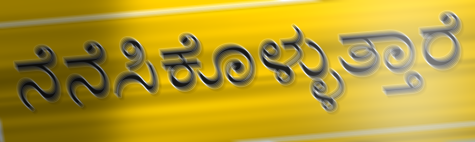
ನೆನೆಸಿಕೊಳ್ಳುತ್ತಾರೆ